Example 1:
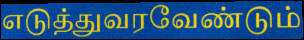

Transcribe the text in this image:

எடுத்துவரவேண்டும்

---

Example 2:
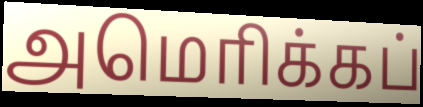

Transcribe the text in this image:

அமெரிக்கப்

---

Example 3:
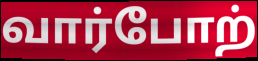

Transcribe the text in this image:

வார்போற்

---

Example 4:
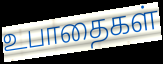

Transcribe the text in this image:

உபாதைகள்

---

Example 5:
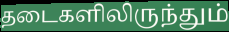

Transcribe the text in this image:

தடைகளிலிருந்தும்